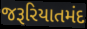
જરૂરિયાતમંદ